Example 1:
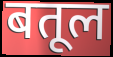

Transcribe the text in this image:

बतूल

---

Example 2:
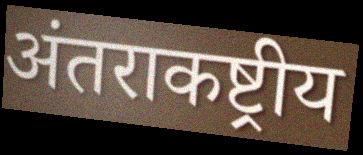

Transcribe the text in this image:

अंतराकष्ट्रीय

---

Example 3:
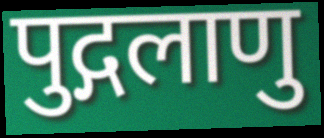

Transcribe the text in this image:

पुद्गलाणु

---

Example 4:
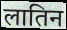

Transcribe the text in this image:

लातिन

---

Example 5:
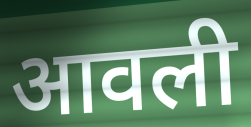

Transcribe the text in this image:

आवली